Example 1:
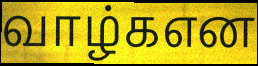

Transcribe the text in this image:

வாழ்கஎன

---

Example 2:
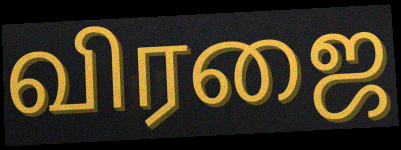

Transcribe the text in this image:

விரஜை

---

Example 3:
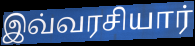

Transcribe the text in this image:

இவ்வரசியார்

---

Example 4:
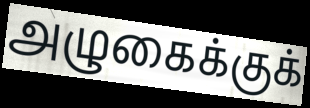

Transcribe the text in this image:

அழுகைக்குக்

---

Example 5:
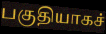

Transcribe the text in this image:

பகுதியாகச்